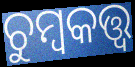
ଚୁମ୍ବକତ୍ତ୍ୱ